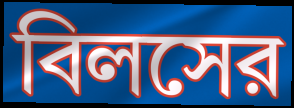
বিলসের